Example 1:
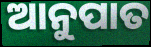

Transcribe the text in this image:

ଆନୁପାତ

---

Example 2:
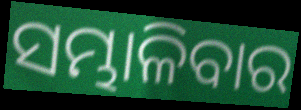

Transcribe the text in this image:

ସମ୍ଭାଳିବାର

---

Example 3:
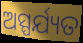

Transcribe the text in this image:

ଅସ୍ପର୍ଯ୍ୟତ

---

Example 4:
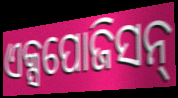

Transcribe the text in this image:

ଏକ୍ସପୋଜିସନ୍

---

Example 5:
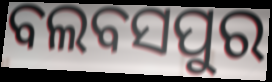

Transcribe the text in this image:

ବଲବସପୁର